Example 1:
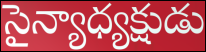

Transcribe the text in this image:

సైన్యాధ్యక్షుడు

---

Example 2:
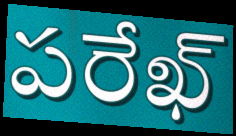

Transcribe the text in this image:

పరేఖ్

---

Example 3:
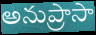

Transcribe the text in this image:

అనుప్రాసా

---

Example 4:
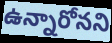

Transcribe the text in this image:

ఉన్నారోనని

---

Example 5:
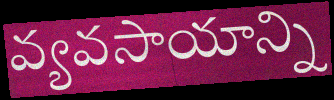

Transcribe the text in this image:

వ్యవసాయాన్ని